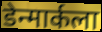
डेन्मार्कला